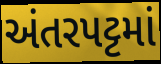
અંતરપટ્ટમાં